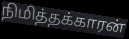
நிமித்தக்காரன்